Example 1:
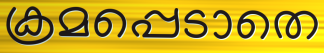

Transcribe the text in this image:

ക്രമപ്പെടാതെ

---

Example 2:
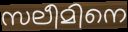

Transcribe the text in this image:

സലീമിനെ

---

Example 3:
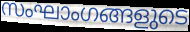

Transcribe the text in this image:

സംഘാംഗങ്ങളുടെ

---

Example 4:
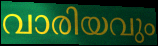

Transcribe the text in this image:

വാരിയവും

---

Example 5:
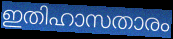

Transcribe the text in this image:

ഇതിഹാസതാരം